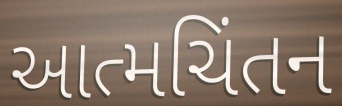
આત્મચિંતન